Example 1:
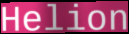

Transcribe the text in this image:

Helion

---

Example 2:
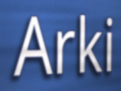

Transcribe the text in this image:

Arki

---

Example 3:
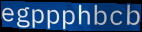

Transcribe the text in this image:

egppphbcb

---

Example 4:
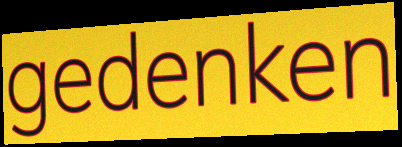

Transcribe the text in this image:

gedenken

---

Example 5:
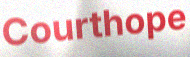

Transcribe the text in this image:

Courthope